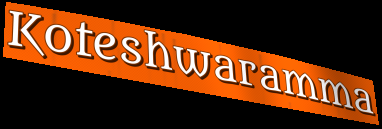
Koteshwaramma